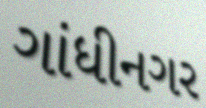
ગાંધીનગર